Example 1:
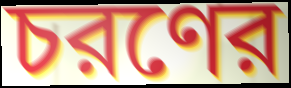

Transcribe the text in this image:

চরণের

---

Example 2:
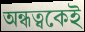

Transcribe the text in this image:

অন্ধত্বকেই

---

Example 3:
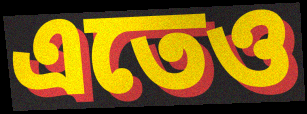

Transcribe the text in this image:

এতেও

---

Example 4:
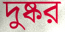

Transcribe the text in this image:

দুষ্কর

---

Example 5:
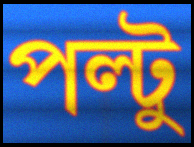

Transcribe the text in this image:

পল্টু